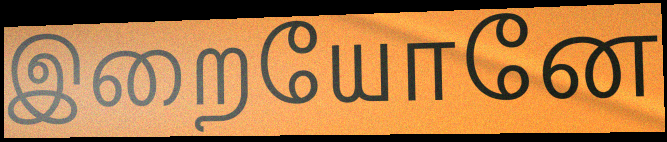
இறையோனே